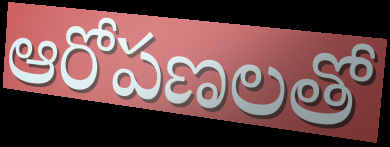
ఆరోపణలతో